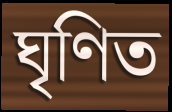
ঘৃণিত